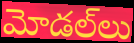
మోడల్‌లు